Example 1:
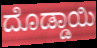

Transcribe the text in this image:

ದೊಡ್ಡಾಯಿ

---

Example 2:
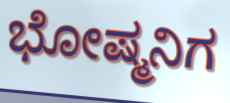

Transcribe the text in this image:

ಭೋಷ್ಮನಿಗ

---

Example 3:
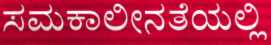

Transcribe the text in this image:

ಸಮಕಾಲೀನತೆಯಲ್ಲಿ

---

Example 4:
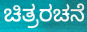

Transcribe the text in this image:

ಚಿತ್ರರಚನೆ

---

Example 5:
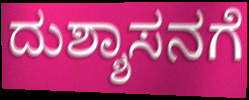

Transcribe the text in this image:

ದುಶ್ಶಾಸನಗೆ